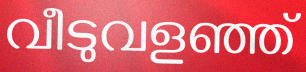
വീടുവളഞ്ഞ്